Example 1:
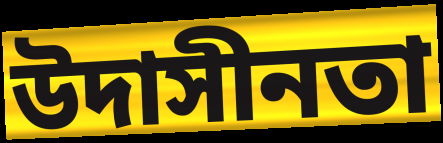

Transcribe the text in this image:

উদাসীনতা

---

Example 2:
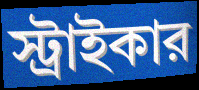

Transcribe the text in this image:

স্ট্রাইকার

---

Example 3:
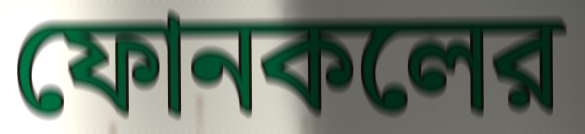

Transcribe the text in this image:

ফোনকলের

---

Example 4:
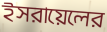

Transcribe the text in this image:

ইসরায়েলের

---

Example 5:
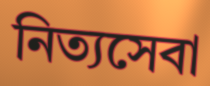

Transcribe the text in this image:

নিত্যসেবা